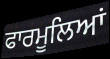
ਫਾਰਮੂਲਿਆਂ